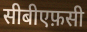
सीबीएफ़सी